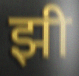
झी